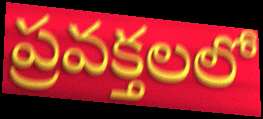
ప్రవక్తలలో